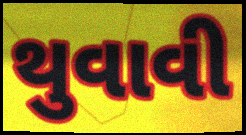
થુવાવી